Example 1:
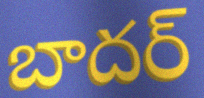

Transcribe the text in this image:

బాదర్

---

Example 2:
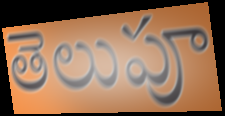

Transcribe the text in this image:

తెలుపూ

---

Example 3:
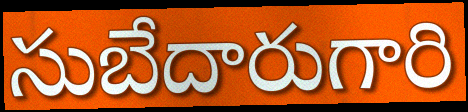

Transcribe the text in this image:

సుబేదారుగారి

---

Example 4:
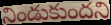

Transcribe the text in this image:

నిండుకుందని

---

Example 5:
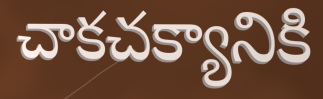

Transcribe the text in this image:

చాకచక్యానికి